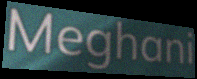
Meghani